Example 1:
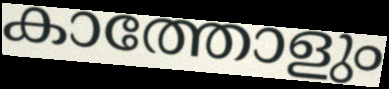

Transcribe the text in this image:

കാത്തോളും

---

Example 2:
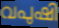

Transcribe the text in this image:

വപുഷി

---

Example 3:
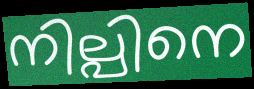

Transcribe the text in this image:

നില്പിനെ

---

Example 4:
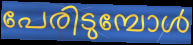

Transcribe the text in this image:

പേരിടുമ്പോൾ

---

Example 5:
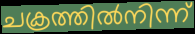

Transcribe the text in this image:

ചക്രത്തിൽനിന്ന്